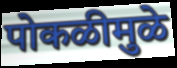
पोकळीमुळे